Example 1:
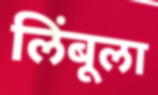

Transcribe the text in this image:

लिंबूला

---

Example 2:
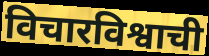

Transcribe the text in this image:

विचारविश्वाची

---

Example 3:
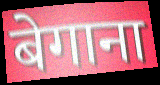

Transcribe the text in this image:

बेगाना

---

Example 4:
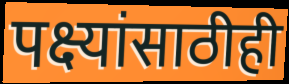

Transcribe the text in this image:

पक्ष्यांसाठीही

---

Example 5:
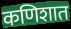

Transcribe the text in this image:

कणिशात